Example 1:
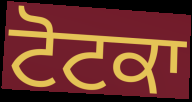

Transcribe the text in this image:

ਟੋਟਕਾ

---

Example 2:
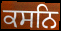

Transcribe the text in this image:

ਕਸਨਿ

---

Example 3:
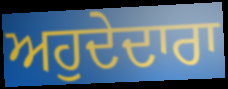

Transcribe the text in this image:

ਅਹੁਦੇਦਾਰਾ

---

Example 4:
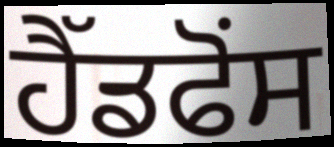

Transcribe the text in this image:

ਹੈੱਡਫੋਂਸ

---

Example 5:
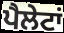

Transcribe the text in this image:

ਪੈਲੇਟਾਂ